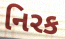
નિરક